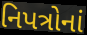
નિપત્રોનાં